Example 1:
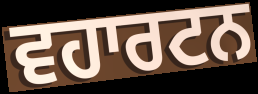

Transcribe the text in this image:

ਵਹਾਰਟਨ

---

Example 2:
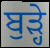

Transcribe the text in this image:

ਬੁੜ੍ਹੇ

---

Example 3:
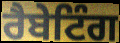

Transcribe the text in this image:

ਰੈਬੇਟਿੰਗ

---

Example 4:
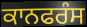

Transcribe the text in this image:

ਕਾਨਫਰੰਸ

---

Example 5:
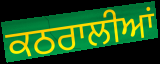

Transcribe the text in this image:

ਕਠਰਾਲੀਆਂ